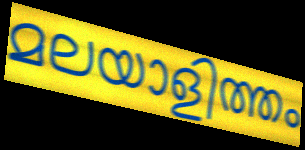
മലയാളിത്തം